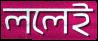
ললেই